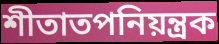
শীতাতপনিয়ন্ত্রক